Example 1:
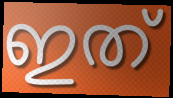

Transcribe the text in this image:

ഇത്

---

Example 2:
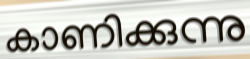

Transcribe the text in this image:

കാണിക്കുന്നു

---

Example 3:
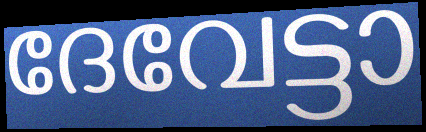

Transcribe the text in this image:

ദേവേട്ടാ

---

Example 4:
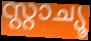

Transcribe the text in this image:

സ്റ്റാച്യൂ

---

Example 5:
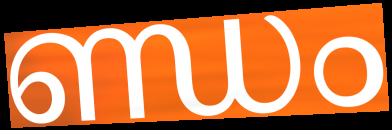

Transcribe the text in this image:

ണ്ഡം